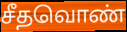
சீதவொண்